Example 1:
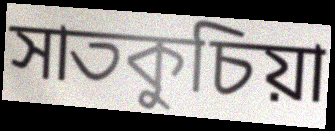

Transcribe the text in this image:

সাতকুচিয়া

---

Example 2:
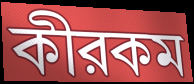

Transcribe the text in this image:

কীরকম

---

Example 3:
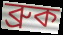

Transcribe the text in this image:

ব্রুক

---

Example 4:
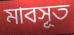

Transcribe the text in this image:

মাবসূত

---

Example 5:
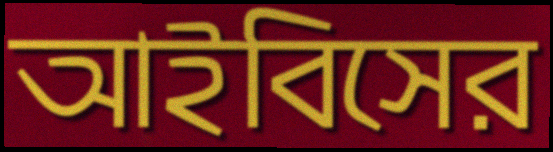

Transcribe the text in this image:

আইবিসের